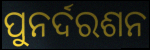
ପୁନର୍ଦରଶନ